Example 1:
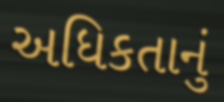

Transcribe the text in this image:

અધિકતાનું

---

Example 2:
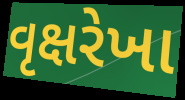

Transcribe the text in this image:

વૃક્ષરેખા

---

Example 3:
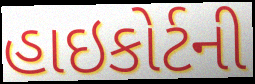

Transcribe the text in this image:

હાઇકોર્ટની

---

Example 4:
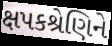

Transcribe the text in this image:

ક્ષપકશ્રેણિને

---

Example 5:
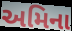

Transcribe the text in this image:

અમિના